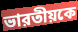
ভারতীয়কে